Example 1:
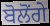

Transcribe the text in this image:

ਬੋਲੋਂਗੇ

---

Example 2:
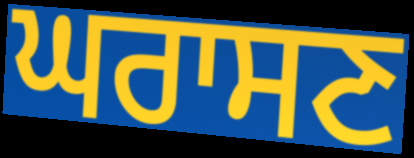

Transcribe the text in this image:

ਘਰਾਸਣ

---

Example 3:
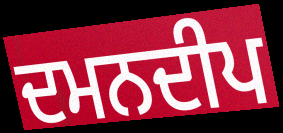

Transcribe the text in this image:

ਦਮਨਦੀਪ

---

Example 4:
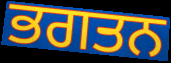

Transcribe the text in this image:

ਭਗਤਨ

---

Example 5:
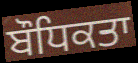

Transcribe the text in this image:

ਬੌਧਿਕਤਾ